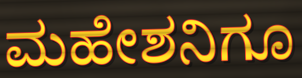
ಮಹೇಶನಿಗೂ